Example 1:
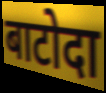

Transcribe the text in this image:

बाटोदा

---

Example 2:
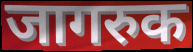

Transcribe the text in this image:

जागरुक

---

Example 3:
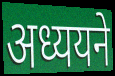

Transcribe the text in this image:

अध्ययने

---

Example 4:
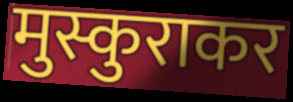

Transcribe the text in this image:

मुस्‍कुराकर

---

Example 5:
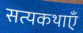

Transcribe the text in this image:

सत्यकथाएँ